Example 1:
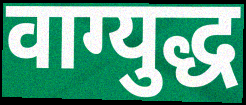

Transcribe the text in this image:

वाग्युद्ध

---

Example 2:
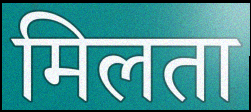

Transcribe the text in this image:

मिलता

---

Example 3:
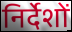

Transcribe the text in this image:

निर्देशों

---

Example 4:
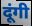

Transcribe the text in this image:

दूंगी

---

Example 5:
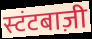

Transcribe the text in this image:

स्टंटबाज़ी